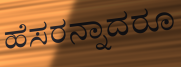
ಹೆಸರನ್ನಾದರೂ